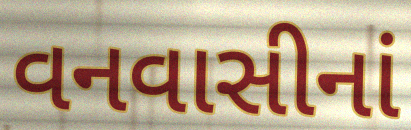
વનવાસીનાં